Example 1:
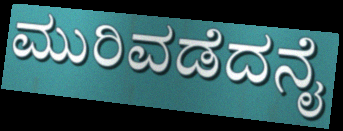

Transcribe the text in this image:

ಮುರಿವಡೆದನೈ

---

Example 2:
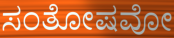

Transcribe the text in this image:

ಸಂತೋಷವೋ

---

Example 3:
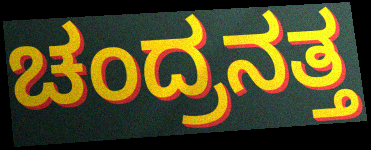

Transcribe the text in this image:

ಚಂದ್ರನತ್ತ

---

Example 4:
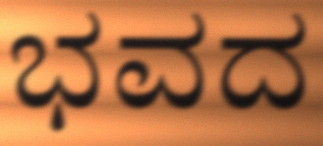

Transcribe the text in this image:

ಭವದ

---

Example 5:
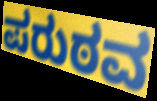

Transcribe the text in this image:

ಪರುಠವ